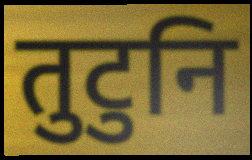
तुटुनि